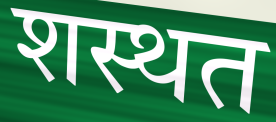
शस्थत